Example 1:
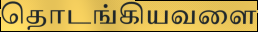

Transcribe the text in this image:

தொடங்கியவளை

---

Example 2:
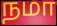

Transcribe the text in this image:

நமா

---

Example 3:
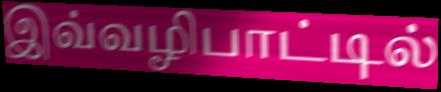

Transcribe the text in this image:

இவ்வழிபாட்டில்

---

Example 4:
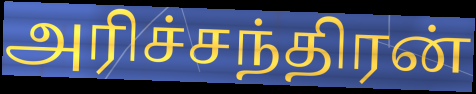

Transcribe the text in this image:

அரிச்சந்திரன்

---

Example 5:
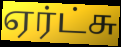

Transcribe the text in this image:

ஏர்ட்சு